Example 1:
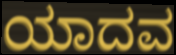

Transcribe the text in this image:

ಯಾದವ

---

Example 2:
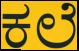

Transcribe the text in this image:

ಕಲೆ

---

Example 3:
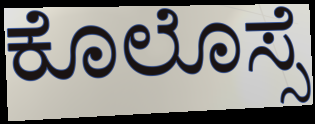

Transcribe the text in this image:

ಕೊಲೊಸ್ಸೆ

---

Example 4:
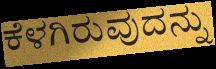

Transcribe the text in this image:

ಕೆಳಗಿರುವುದನ್ನು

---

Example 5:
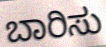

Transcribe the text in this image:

ಬಾರಿಸು